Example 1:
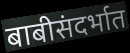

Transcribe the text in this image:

बाबीसंदर्भात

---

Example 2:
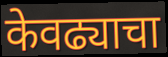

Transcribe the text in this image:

केवढ्याचा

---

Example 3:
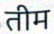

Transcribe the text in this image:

तीम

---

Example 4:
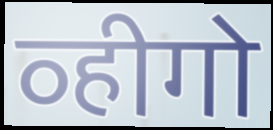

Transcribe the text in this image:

व्हीगो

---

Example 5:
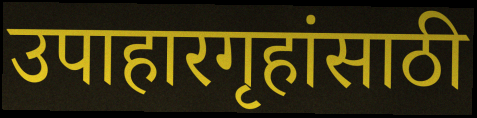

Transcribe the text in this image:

उपाहारगृहांसाठी